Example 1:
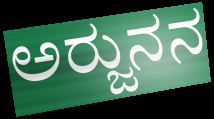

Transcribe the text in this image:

ಅರ್‍ಜುನನ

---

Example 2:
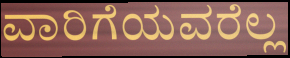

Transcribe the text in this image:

ವಾರಿಗೆಯವರೆಲ್ಲ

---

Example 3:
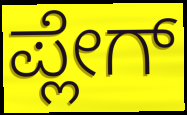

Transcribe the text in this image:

ಪ್ಲೇಗ್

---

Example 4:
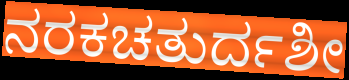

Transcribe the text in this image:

ನರಕಚತುರ್ದಶೀ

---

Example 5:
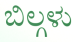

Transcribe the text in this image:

ಬಿಲ್ಗಳು